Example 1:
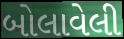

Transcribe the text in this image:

બોલાવેલી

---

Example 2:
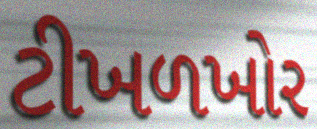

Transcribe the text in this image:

ટીખળખોર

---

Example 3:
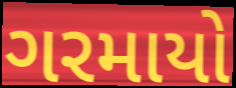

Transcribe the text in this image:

ગરમાયો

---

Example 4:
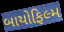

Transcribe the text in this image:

બાયોફિલ્મ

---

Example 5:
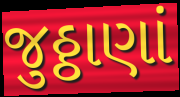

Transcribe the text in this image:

જુઠ્ઠાણાં